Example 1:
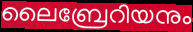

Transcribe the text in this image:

ലൈബ്രേറിയനും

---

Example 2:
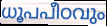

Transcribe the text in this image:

ധൂപപീഠവും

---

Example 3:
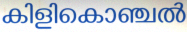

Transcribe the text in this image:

കിളികൊഞ്ചൽ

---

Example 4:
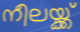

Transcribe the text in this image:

നീലയ്ക്ക്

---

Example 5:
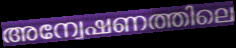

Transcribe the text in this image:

അന്വേഷണത്തിലെ